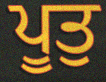
ਪੂਤੁ